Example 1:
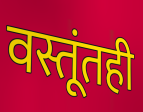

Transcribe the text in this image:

वस्तूंतही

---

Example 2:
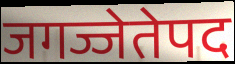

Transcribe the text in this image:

जगज्जेतेपद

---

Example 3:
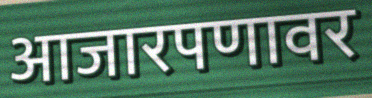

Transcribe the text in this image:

आजारपणावर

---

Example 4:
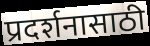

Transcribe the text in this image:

प्रदर्शनासाठी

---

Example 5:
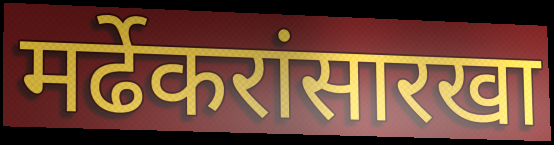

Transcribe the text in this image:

मर्ढेकरांसारखा